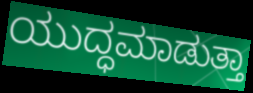
ಯುದ್ಧಮಾಡುತ್ತಾ